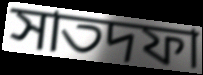
সাতদফা